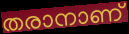
തരാനാണ്